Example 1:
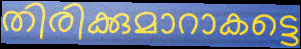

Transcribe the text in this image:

തിരിക്കുമാറാകട്ടെ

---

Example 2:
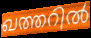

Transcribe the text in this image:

ഖത്തറിൽ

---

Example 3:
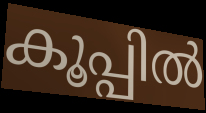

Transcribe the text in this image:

കൂപ്പിൽ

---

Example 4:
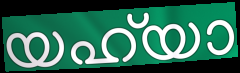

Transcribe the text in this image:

യഹ്‌യാ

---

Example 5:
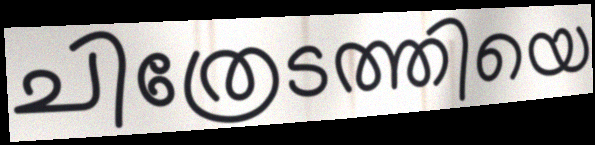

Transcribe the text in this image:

ചിത്രേടത്തിയെ